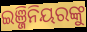
ଇଞ୍ଜିନିୟରଙ୍କୁ